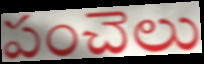
పంచెలు